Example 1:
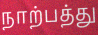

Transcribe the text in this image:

நாற்பத்து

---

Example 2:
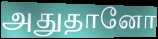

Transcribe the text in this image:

அதுதானோ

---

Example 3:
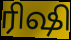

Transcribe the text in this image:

ரிஷி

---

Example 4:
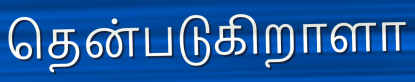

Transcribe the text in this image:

தென்படுகிறாளா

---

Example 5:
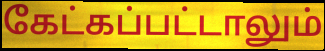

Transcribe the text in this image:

கேட்கப்பட்டாலும்